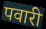
पवारी